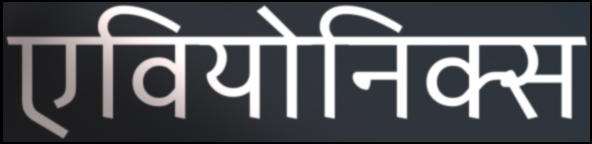
एवियोनिक्स